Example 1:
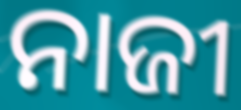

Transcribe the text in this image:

ନାଜୀ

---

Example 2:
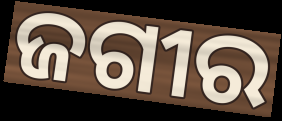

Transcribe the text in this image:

ଜଗୀର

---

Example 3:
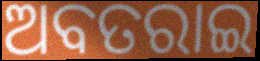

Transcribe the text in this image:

ଅବତରାଇ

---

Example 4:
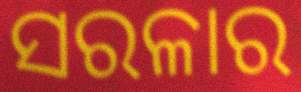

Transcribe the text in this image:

ସରଳାର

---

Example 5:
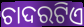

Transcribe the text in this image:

ଚାଦରଟିଏ